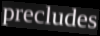
precludes